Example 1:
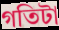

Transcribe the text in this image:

গতিটা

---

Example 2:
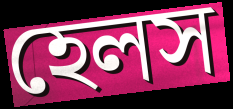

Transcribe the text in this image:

হেলস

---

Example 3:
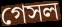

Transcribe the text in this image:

গেসল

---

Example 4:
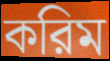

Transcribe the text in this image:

করিম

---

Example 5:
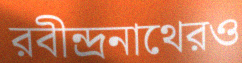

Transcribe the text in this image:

রবীন্দ্রনাথেরও